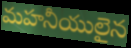
మహనీయులైన